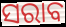
ସରାବ